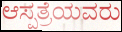
ಆಸ್ಪತ್ರೆಯವರು